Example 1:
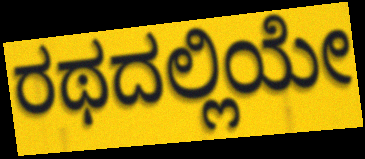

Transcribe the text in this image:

ರಥದಲ್ಲಿಯೇ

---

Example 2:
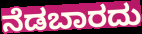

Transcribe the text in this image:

ನೆಡಬಾರದು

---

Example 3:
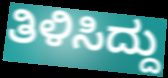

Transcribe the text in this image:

ತಿಳಿಸಿದ್ದು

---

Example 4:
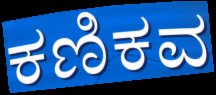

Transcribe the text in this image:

ಕಣಿಕವ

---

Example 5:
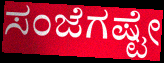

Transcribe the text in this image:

ಸಂಜೆಗಷ್ಟೇ